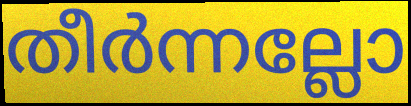
തീർന്നല്ലോ